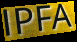
IPFA